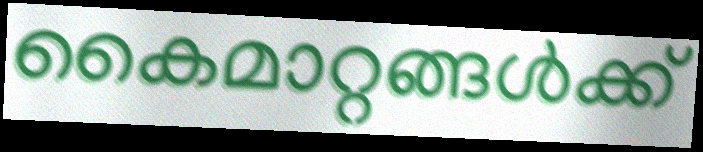
കൈമാറ്റങ്ങൾക്ക്